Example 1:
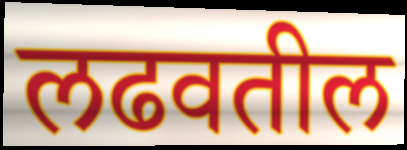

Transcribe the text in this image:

लढवतील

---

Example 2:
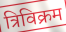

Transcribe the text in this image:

त्रिविक्रम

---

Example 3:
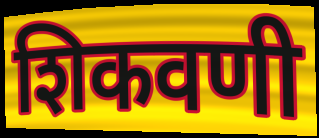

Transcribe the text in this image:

शिकवणी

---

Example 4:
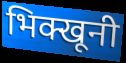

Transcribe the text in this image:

भिक्खूनी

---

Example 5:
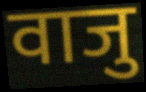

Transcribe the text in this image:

वाजु